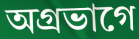
অগ্রভাগে